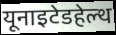
यूनाइटेडहेल्थ